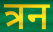
त्रन